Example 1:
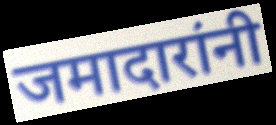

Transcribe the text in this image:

जमादारांनी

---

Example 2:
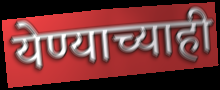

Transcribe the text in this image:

येण्याच्याही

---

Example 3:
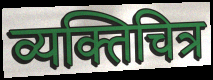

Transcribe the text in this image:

व्यक्तिचित्र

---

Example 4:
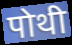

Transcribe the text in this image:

पोथी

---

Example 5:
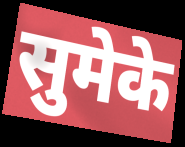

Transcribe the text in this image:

सुमेके